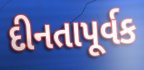
દીનતાપૂર્વક